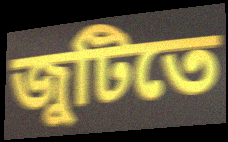
জুটিতে